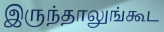
இருந்தாலுங்கூட